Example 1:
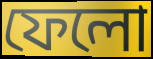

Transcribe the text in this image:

ফেলো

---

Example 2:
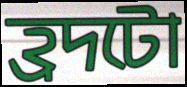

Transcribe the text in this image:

হ্ৰদটো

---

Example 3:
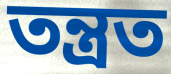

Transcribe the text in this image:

তন্ত্ৰত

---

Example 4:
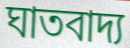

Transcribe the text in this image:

ঘাতবাদ্য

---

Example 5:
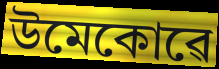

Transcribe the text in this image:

উমেকোৱে